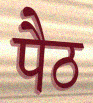
पैठ